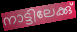
നാട്ടിലേക്കു്